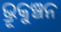
ଭ୍ରୂକୁଞ୍ଚନ